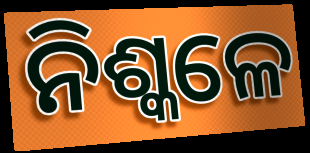
ନିଶ୍କଳେ